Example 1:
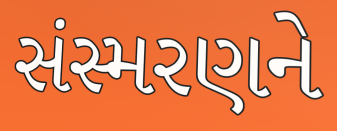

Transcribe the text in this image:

સંસ્મરણને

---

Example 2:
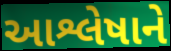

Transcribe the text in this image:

આશ્લેષાને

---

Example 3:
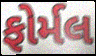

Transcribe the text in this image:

ફોર્મલ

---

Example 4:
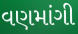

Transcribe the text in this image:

વણમાંગી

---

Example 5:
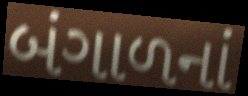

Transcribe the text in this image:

બંગાળનાં